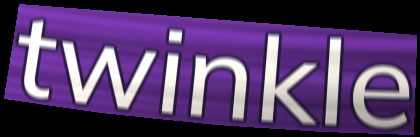
twinkle